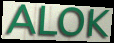
ALOK